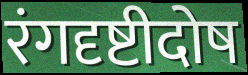
रंगदृष्टीदोष